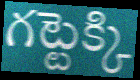
గట్టెక్కి